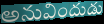
అనువిందుడు